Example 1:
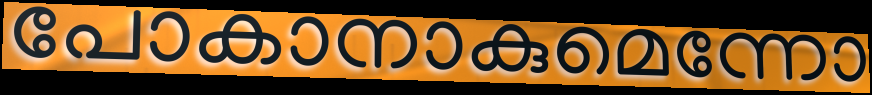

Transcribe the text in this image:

പോകാനാകുമെന്നോ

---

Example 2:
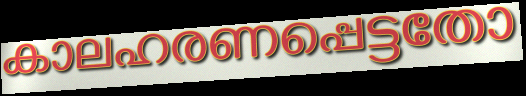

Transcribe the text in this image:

കാലഹരണപ്പെട്ടതോ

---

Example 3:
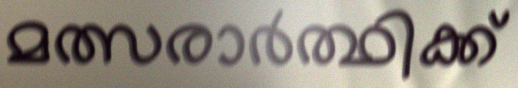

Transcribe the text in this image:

മത്സരാർത്ഥിക്ക്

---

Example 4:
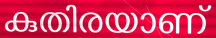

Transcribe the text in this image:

കുതിരയാണ്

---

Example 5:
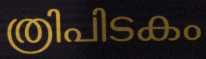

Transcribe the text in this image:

ത്രിപിടകം